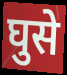
घुसे